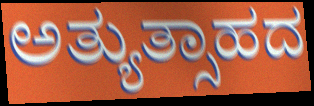
ಅತ್ಯುತ್ಸಾಹದ